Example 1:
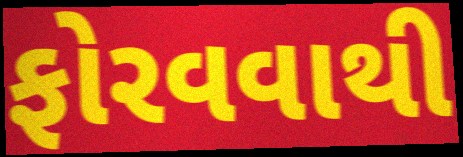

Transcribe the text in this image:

ફોરવવાથી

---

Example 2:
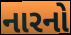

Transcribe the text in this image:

નારનો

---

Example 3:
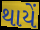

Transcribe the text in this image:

થાયેં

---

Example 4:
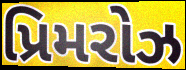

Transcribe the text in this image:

પ્રિમરોઝ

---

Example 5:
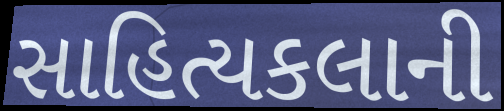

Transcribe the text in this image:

સાહિત્યકલાની